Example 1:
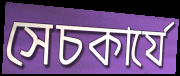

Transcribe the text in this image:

সেচকার্যে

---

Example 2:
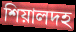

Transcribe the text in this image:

শিয়ালদহ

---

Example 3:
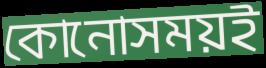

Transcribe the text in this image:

কোনোসময়ই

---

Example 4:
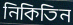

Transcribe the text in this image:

নিকিতিন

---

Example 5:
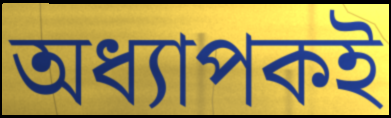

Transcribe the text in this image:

অধ্যাপকই